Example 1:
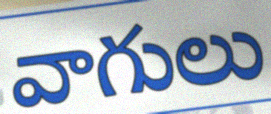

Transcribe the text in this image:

వాగులు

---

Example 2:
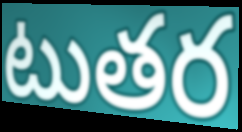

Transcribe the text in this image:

టుతర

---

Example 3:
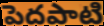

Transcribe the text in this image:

పెదపాటి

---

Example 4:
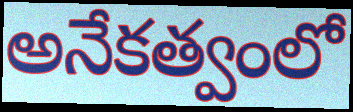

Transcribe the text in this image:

అనేకత్వంలో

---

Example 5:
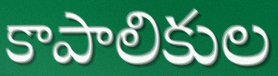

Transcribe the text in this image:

కాపాలికుల